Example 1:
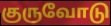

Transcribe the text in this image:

குருவோடு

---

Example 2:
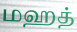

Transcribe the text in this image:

மஹத்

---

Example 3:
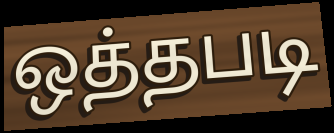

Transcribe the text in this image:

ஒத்தபடி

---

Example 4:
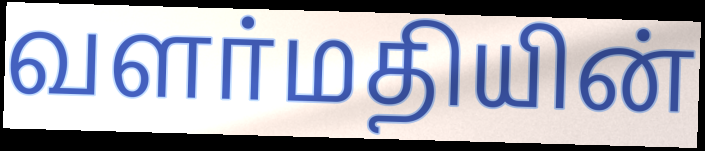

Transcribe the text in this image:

வளர்மதியின்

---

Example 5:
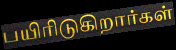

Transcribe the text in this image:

பயிரிடுகிறார்கள்